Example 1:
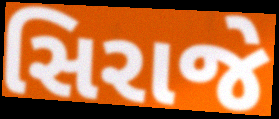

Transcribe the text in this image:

સિરાજે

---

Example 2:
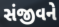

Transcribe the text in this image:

સંજીવને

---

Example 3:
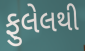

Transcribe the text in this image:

ફુલેલથી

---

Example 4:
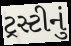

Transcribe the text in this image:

ટ્રસ્ટીનું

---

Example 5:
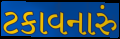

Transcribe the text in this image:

ટકાવનારું